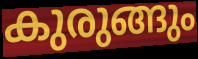
കുരുങ്ങും